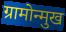
ग्रामोन्मुख